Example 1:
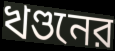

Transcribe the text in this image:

খণ্ডনের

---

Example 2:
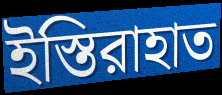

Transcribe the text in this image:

ইস্তিরাহাত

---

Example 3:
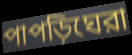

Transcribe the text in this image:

পাপড়িঘেরা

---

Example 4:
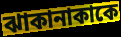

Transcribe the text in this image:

ঝাকানাকাকে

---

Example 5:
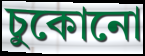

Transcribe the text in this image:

চুকোনো